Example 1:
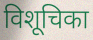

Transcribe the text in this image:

विशूचिका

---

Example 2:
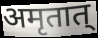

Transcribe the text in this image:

अमृतात्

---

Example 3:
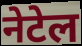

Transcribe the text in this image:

नेटेल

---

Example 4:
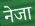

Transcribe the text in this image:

नेजा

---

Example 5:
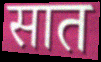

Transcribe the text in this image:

सात